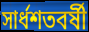
সার্ধশতবর্ষী